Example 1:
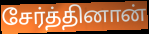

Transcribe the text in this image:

சேர்த்தினான்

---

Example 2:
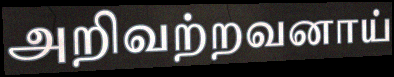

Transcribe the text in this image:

அறிவற்றவனாய்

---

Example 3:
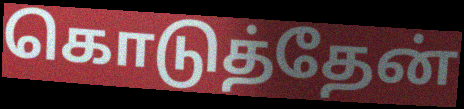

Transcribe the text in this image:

கொடுத்தேன்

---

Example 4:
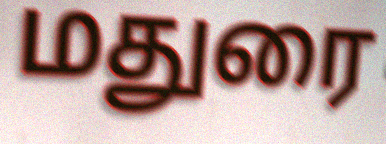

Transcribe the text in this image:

மதுரை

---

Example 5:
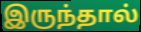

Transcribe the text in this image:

இருந்தால்